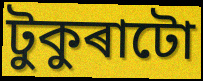
টুকুৰাটো